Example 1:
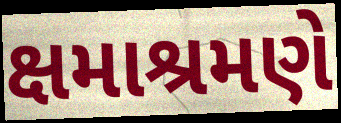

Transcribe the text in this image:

ક્ષમાશ્રમણે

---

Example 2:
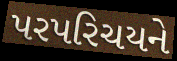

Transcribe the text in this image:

પરપરિચયને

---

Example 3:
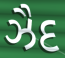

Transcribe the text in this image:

ઝૈદ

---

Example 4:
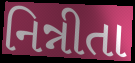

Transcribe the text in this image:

નિન્નીતા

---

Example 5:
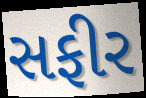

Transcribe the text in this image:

સફીર